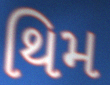
થિમ